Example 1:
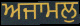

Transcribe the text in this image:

ਅਜਾਮਲੁ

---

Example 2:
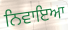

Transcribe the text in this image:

ਨਿਵਾਇਆ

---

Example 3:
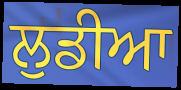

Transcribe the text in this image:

ਲੁਡੀਆ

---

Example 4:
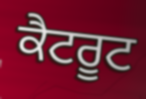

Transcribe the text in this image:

ਕੈਟਰੂਟ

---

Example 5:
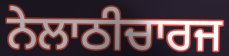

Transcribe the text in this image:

ਨੇਲਾਠੀਚਾਰਜ